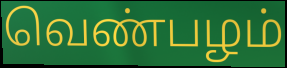
வெண்பழம்